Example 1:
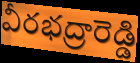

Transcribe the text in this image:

వీరభద్రారెడ్డి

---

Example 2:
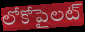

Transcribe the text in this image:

లోకోపైలట్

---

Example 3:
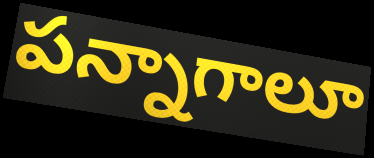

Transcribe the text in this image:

పన్నాగాలూ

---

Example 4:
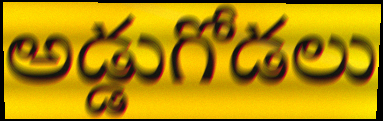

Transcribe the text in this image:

అడ్డుగోడలు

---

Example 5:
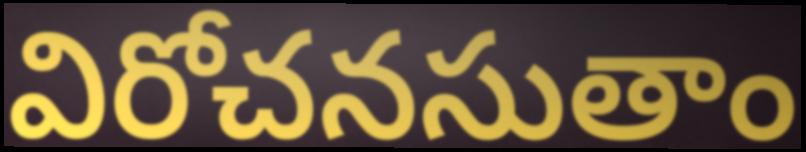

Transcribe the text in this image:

విరోచనసుతాం